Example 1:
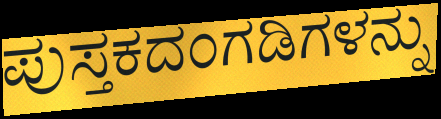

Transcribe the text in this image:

ಪುಸ್ತಕದಂಗಡಿಗಳನ್ನು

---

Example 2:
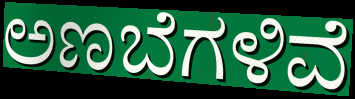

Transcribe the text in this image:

ಅಣಬೆಗಳಿವೆ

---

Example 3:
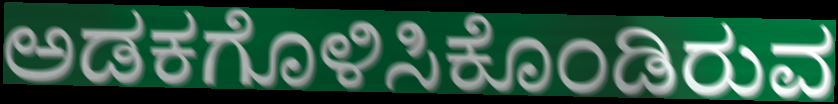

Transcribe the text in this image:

ಅಡಕಗೊಳಿಸಿಕೊಂಡಿರುವ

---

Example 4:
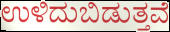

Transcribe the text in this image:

ಉಳಿದುಬಿಡುತ್ತವೆ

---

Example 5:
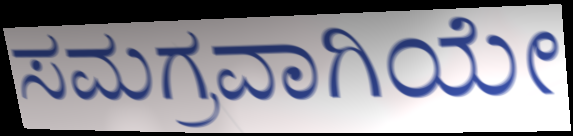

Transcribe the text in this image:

ಸಮಗ್ರವಾಗಿಯೇ